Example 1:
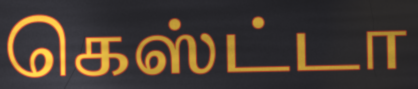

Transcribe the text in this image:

கெஸ்ட்டா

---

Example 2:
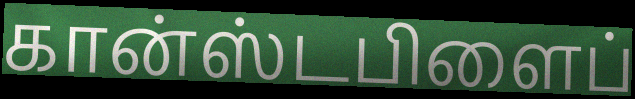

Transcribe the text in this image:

கான்ஸ்டபிளைப்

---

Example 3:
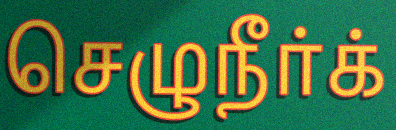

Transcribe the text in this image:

செழுநீர்க்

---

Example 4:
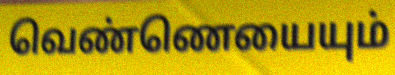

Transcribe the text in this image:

வெண்ணெயையும்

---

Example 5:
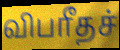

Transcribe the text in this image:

விபரீதச்